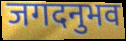
जगदनुभव